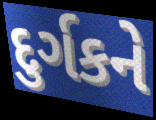
દુર્ગકને